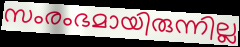
സംരംഭമായിരുന്നില്ല